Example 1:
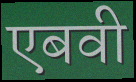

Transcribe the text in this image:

एबवी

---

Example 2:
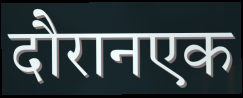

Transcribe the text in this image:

दौरानएक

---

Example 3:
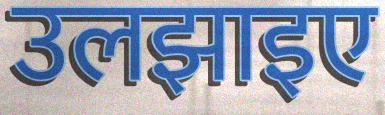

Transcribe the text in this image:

उलझाइए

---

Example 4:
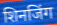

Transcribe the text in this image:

शिनजिंग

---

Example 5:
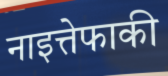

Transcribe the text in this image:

नाइत्तेफाकी